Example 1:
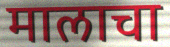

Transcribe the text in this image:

मालाचा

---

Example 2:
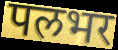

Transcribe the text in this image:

पलभर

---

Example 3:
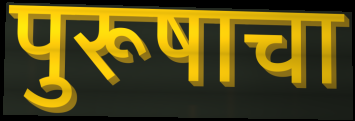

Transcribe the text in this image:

पुरूषाचा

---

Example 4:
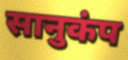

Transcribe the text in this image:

सानुकंप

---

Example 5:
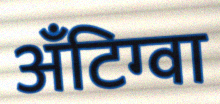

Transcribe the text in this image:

अँटिग्वा